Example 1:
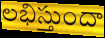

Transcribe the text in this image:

లభిస్తుందా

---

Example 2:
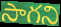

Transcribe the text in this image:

సాగని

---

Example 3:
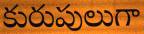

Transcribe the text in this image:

కురుపులుగా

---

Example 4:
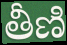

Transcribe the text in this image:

తీణి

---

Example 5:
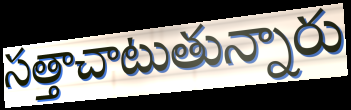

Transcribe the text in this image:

సత్తాచాటుతున్నారు